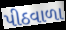
પીઠવાળા